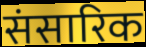
संसारिक